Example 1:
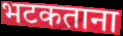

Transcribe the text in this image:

भटकताना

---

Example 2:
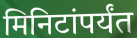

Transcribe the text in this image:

मिनिटांपर्यंत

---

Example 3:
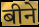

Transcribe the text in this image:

बीने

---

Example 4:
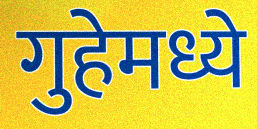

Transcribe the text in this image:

गुहेमध्ये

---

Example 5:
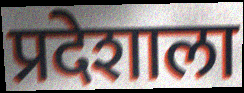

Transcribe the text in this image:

प्रदेशाला